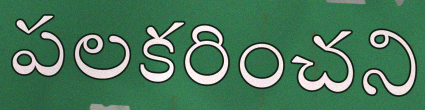
పలకరించని